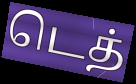
டெத்